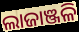
ଲାଜାଞ୍ଜଳି